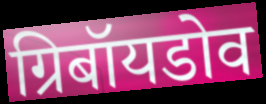
ग्रिबॉयडोव